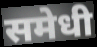
समेधी